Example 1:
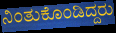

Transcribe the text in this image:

ನಿಂತುಕೊಂಡಿದ್ದರು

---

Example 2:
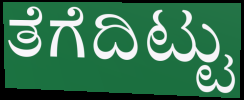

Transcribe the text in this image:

ತೆಗೆದಿಟ್ಟು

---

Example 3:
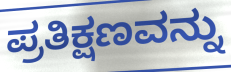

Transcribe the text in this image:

ಪ್ರತಿಕ್ಷಣವನ್ನು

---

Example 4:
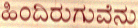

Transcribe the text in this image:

ಹಿಂದಿರುಗುವೆನು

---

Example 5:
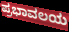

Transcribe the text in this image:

ಪ್ರಭಾವಲಯ